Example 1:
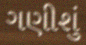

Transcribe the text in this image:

ગણીશું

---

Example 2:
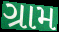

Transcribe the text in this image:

ગ્રામ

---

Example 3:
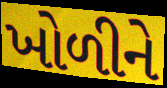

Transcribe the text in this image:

ખોળીને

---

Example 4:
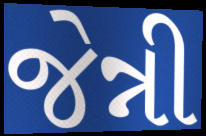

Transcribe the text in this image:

જેન્ની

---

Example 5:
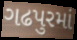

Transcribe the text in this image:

ગઢપુરમાં